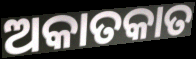
ଅକାତକାତ